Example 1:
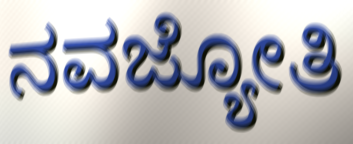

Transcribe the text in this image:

ನವಜ್ಯೋತಿ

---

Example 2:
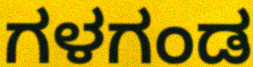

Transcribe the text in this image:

ಗಳಗಂಡ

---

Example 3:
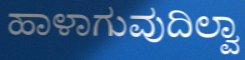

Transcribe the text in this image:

ಹಾಳಾಗುವುದಿಲ್ವಾ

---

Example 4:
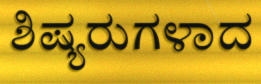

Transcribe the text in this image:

ಶಿಷ್ಯರುಗಳಾದ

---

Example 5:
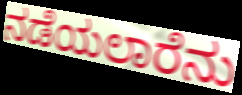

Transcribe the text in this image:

ನಡೆಯಲಾರೆನು